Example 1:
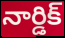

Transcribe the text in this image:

నార్డిక్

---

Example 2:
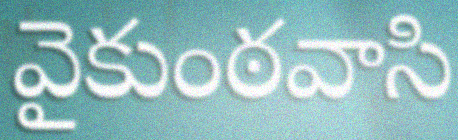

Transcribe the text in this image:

వైకుంఠవాసి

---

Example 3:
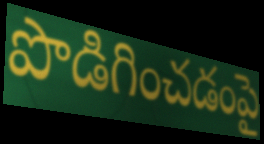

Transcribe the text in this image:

పొడిగించడంపై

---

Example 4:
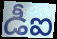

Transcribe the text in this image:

డీఐ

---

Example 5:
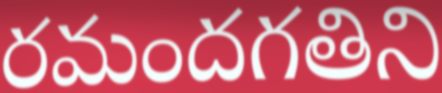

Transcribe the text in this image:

రమందగతిని